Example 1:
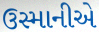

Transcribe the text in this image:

ઉસ્માનીએ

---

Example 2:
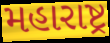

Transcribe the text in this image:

મહારાષ્ટ્ર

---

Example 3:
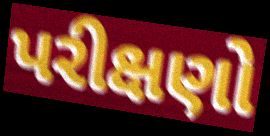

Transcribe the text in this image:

પરીક્ષણો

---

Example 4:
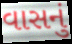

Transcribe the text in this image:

વાસનું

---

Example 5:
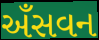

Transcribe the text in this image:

અઁસવન